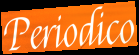
Periodico